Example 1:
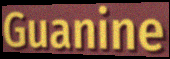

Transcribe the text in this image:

Guanine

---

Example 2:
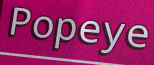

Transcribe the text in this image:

Popeye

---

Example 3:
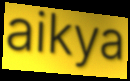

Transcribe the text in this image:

aikya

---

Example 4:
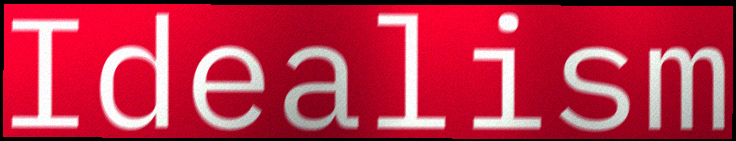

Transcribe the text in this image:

Idealism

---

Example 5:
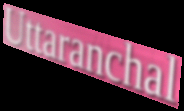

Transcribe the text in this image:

Uttaranchal